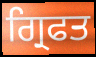
ਗ੍ਰਿਫਤ